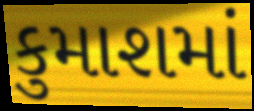
કુમાશમાં